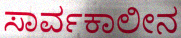
ಸಾರ್ವಕಾಲೀನ